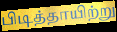
பிடித்தாயிற்று